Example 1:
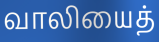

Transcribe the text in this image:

வாலியைத்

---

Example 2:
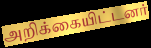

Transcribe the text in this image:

அறிக்கையிட்டனர்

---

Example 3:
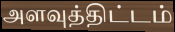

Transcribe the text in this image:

அளவுத்திட்டம்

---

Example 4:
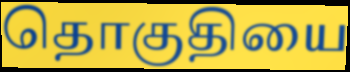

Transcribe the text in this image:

தொகுதியை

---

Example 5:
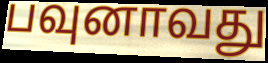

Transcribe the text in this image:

பவுனாவது